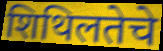
शिथिलतेचे